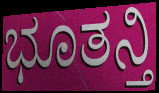
ಭೂತನ್ತಿ